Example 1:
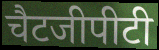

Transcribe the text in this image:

चैटजीपीटी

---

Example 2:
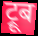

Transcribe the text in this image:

ट्रूब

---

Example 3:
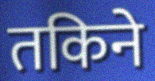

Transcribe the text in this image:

तकिने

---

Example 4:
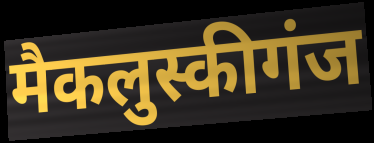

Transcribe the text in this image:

मैकलुस्कीगंज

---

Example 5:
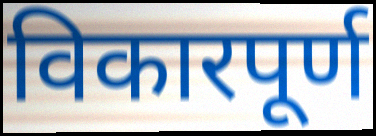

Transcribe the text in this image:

विकारपूर्ण